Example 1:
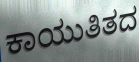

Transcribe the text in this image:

ಕಾಯುತಿತದ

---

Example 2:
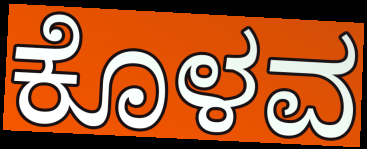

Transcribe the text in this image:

ಕೊಳವ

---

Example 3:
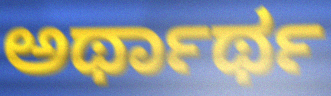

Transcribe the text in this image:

ಅರ್ಥಾರ್ಥ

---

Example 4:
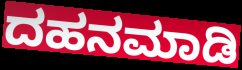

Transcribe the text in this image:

ದಹನಮಾಡಿ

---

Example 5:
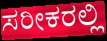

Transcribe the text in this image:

ಸರೀಕರಲ್ಲಿ